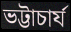
ভট্টাচার্য